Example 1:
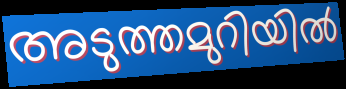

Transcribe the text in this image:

അടുത്തമുറിയിൽ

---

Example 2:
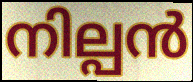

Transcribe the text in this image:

നില്പൻ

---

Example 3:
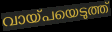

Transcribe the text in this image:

വായ്പയെടുത്ത്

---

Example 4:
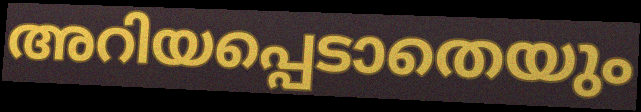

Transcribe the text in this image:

അറിയപ്പെടാതെയും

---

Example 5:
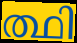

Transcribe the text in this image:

ത്ഥി